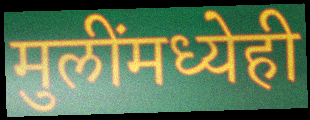
मुलींमध्येही